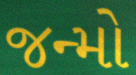
જન્મો